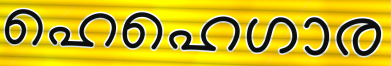
ഹെഹെഗാര